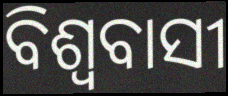
ବିଶ୍ୱବାସୀ